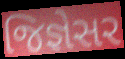
જિજ્ઞેસર